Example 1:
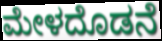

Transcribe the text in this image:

ಮೇಳದೊಡನೆ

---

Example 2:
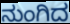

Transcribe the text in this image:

ನುಂಗಿದ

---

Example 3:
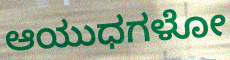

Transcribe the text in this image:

ಆಯುಧಗಳೋ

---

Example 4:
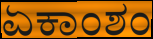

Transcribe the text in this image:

ಏಕಾಂಶಂ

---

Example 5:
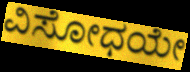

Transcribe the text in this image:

ವಿಸೋಧಯೇ